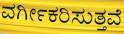
ವರ್ಗೀಕರಿಸುತ್ತವೆ